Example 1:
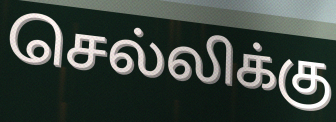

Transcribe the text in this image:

செல்லிக்கு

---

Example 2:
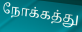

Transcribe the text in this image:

நோக்கத்து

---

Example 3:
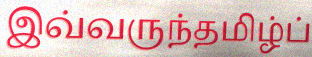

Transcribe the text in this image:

இவ்வருந்தமிழ்ப்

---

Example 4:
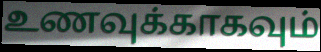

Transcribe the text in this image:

உணவுக்காகவும்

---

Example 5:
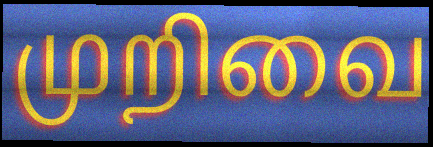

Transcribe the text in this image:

முறிவை